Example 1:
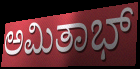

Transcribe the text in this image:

ಅಮಿತಾಭ್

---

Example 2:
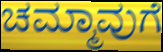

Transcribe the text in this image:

ಚಮ್ಮಾವುಗೆ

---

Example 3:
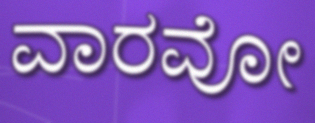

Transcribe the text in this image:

ವಾರವೋ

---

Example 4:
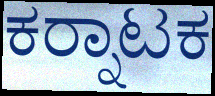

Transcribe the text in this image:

ಕರ‍್ನಾಟಕ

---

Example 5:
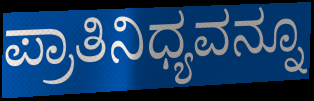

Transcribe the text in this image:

ಪ್ರಾತಿನಿಧ್ಯವನ್ನೂ